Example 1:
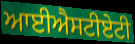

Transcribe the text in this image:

ਆਈਐਸਟੀਏਟੀ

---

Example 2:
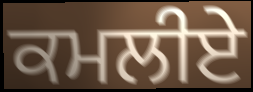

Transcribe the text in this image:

ਕਮਲੀਏ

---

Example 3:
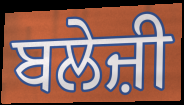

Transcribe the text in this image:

ਬਲੇਜ਼ੀ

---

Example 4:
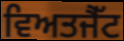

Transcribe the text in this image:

ਵਿਅਤਜੈੱਟ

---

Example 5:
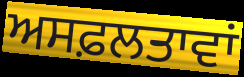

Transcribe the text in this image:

ਅਸਫ਼ਲਤਾਵਾਂ